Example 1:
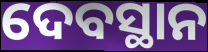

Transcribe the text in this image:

ଦେବସ୍ଥାନ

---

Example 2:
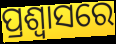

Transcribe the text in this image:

ପ୍ରଶ୍ବାସରେ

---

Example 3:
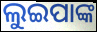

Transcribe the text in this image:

ଲୁଇପାଙ୍କ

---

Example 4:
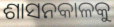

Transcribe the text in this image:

ଶାସନକାଳକୁ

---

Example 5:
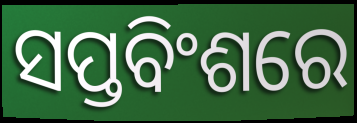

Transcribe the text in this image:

ସପ୍ତବିଂଶରେ